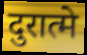
दुरात्मे